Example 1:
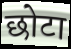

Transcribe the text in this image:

छोटा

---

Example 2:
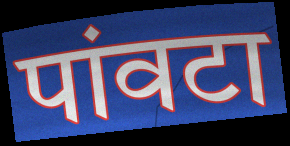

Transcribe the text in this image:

पांवटा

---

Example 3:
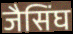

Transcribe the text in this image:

जैसिंघ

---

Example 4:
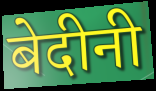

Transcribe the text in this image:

बेदीनी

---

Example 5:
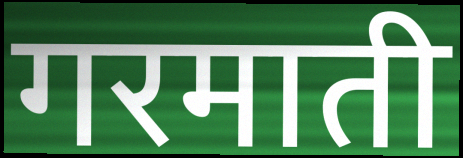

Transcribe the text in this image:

गरमाती